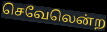
செவேலென்ற